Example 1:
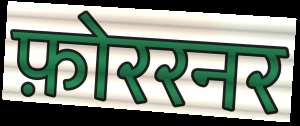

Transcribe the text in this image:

फ़ोररनर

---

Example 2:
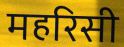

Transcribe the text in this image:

महरिसी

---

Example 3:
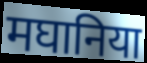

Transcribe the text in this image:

मघानिया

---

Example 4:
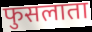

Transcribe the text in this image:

फुसलाता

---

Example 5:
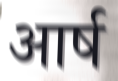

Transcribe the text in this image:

आर्ष